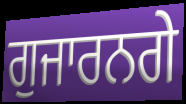
ਗੁਜਾਰਨਗੇ